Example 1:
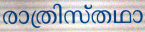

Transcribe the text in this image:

രാത്രിസ്തഥാ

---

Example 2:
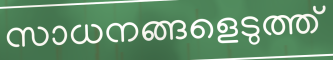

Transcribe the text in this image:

സാധനങ്ങളെടുത്ത്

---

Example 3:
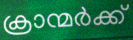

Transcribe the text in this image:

ക്രാന്മർക്ക്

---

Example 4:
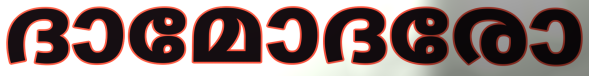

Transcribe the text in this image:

ദാമോദരോ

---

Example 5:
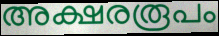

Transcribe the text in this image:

അക്ഷരരൂപം